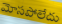
మోసపోలేదు